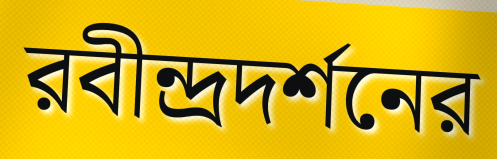
রবীন্দ্রদর্শনের